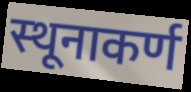
स्थूनाकर्ण